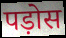
पड़ोस